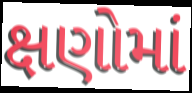
ક્ષણોમાં